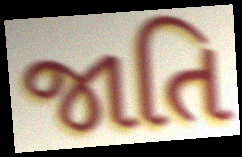
જાતિ